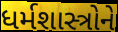
ધર્મશાસ્ત્રોને